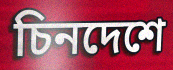
চিনদেশে